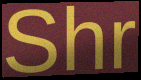
Shr